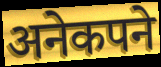
अनेकपने